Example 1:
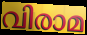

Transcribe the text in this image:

വിരാമ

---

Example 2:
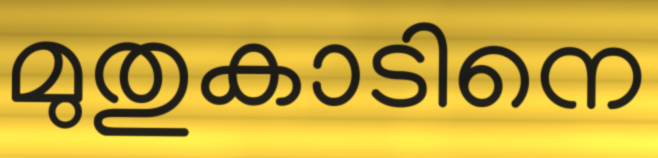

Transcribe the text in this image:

മുതുകാടിനെ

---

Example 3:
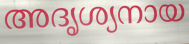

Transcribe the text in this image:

അദൃശ്യനായ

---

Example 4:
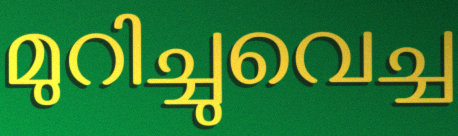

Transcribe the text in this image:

മുറിച്ചുവെച്ച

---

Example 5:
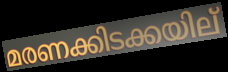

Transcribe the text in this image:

മരണക്കിടക്കയില്